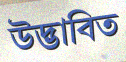
উদ্ভাবিত